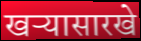
खऱ्यासारखे